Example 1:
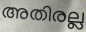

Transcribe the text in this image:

അതിരല്ല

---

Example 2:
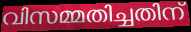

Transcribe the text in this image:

വിസമ്മതിച്ചതിന്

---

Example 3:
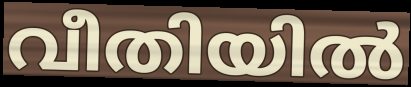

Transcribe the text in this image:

വീതിയിൽ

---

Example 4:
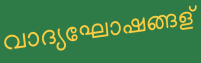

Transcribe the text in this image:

വാദ്യഘോഷങ്ങള്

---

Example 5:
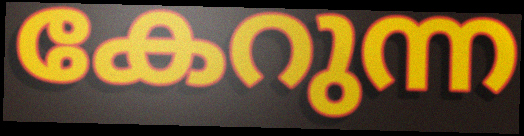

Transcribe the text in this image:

കേറുന്ന